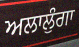
ਅਲਾਲੁੰਗਾ